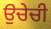
ਉਚੇਚੀ